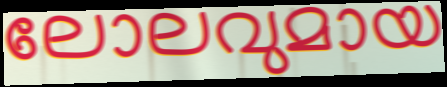
ലോലവുമായ